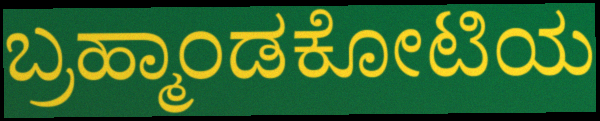
ಬ್ರಹ್ಮಾಂಡಕೋಟಿಯ